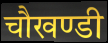
चौखण्डी